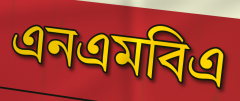
এনএমবিএ